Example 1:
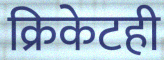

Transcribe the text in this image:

क्रिकेटही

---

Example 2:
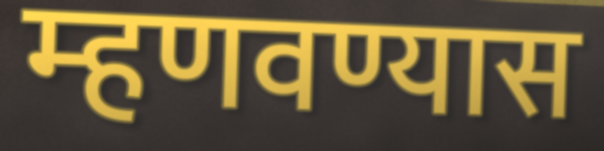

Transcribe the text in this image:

म्हणवण्यास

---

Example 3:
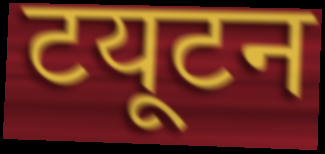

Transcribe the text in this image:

टयूटन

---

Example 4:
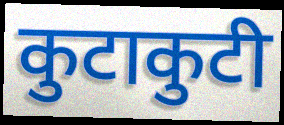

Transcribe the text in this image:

कुटाकुटी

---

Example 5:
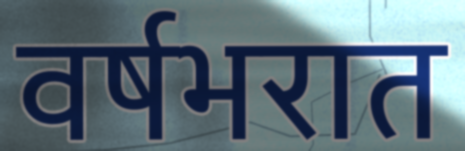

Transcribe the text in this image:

वर्षभरात